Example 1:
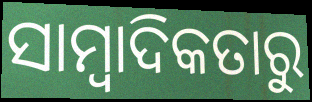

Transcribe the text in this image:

ସାମ୍ବାଦିକତାରୁ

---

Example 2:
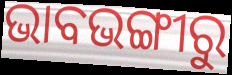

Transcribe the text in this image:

ଭାବଭଙ୍ଗୀରୁ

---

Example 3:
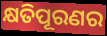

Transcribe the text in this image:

କ୍ଷତିପୂରଣର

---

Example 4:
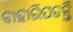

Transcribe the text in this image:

ବାହାରିପଡନ୍ତି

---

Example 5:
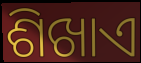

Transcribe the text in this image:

ଶିଖାଏ